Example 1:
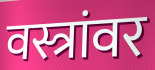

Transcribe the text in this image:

वस्त्रांवर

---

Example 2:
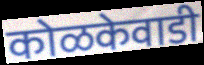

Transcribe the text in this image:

कोळकेवाडी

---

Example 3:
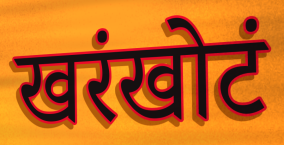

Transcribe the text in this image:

खरंखोटं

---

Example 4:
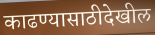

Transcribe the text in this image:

काढण्यासाठीदेखील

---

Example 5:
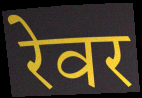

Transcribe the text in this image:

रेवर